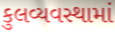
કુલવ્યવસ્થામાં